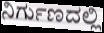
ನಿರ್ಗುಣದಲ್ಲಿ